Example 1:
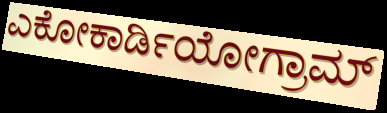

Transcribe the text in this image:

ಎಕೋಕಾರ್ಡಿಯೋಗ್ರಾಮ್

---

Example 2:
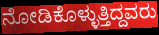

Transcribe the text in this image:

ನೋಡಿಕೊಳ್ಳುತ್ತಿದ್ದವರು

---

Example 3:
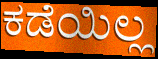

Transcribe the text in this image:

ಕಡೆಯಿಲ್ಲ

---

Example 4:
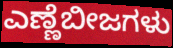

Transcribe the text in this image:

ಎಣ್ಣೆಬೀಜಗಳು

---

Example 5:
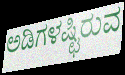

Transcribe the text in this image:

ಅಡಿಗಳಷ್ಟಿರುವ